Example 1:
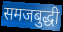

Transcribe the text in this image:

समजबुद्धी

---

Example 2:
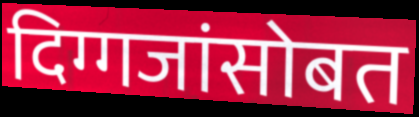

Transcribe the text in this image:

दिग्गजांसोबत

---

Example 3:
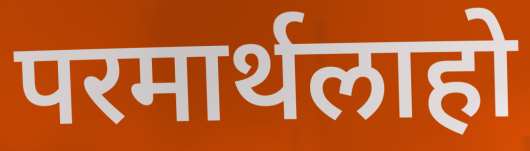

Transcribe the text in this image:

परमार्थलाहो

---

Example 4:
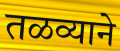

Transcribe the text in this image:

तळव्याने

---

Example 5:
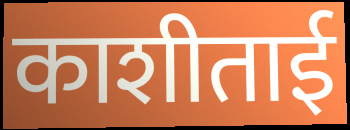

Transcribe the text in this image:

काशीताई